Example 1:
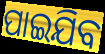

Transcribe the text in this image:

ପାଇଯିବ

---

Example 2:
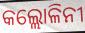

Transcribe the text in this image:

କଲ୍ଲୋଳିନୀ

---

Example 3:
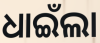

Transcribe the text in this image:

ଧାଇଁଲା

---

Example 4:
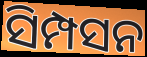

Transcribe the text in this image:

ସିମ୍ପସନ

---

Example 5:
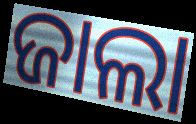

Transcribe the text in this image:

ଜାଲା